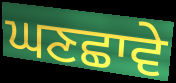
ਘਣਛਾਵੇ